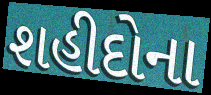
શહીદોના